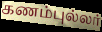
கணம்புல்லர்